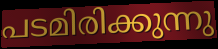
പടമിരിക്കുന്നു